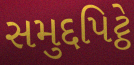
સમુદ્દપિટ્ઠે